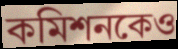
কমিশনকেও